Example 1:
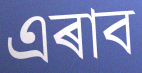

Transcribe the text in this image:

এৰাব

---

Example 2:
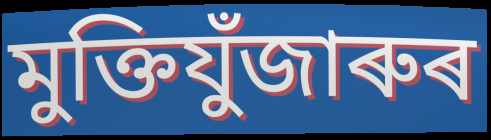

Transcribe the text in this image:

মুক্তিযুঁজাৰুৰ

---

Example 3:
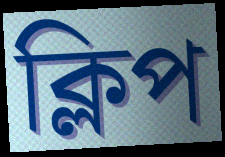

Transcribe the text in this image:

ক্লিপ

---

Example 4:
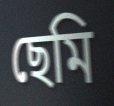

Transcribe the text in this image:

ছেমি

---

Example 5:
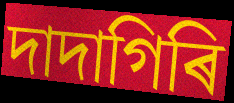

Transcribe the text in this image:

দাদাগিৰি